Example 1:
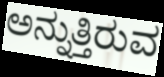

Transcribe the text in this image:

ಅನ್ನುತ್ತಿರುವ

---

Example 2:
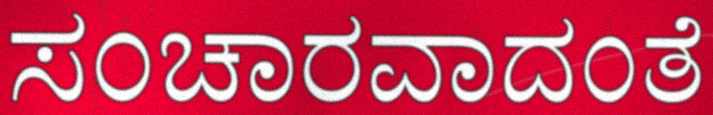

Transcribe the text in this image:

ಸಂಚಾರವಾದಂತೆ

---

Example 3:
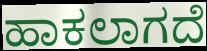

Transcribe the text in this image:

ಹಾಕಲಾಗದೆ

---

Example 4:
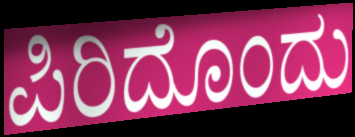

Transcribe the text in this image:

ಪಿರಿದೊಂದು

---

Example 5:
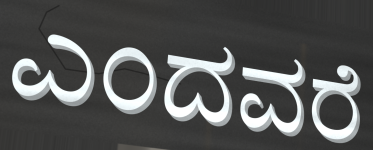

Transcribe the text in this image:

ಎಂದವರೆ